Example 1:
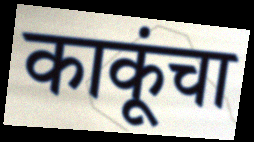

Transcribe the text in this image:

काकूंचा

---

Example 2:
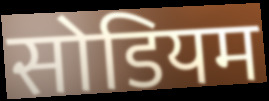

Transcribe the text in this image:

सोडियम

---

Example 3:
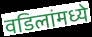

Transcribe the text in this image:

वडिलांमध्ये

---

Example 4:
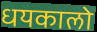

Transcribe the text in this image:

धयकालो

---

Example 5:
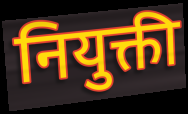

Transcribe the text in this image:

नियुक्ती